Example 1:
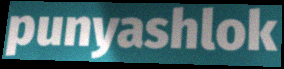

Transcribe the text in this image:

punyashlok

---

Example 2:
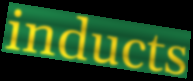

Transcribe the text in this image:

inducts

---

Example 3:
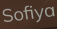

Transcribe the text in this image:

Sofiya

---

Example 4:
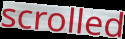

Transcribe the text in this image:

scrolled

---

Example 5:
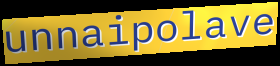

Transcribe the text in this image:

unnaipolave